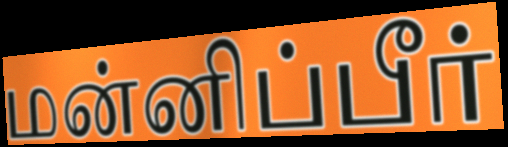
மன்னிப்பீர்